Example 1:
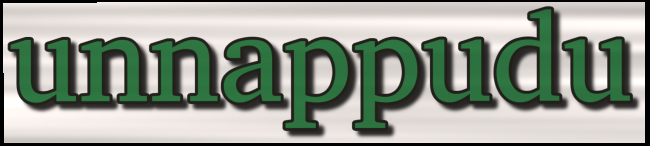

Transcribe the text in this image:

unnappudu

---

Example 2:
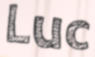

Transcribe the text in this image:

Luc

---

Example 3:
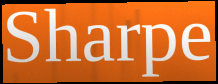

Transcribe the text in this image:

Sharpe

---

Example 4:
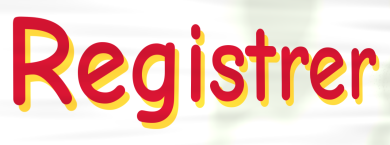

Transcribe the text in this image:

Registrer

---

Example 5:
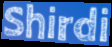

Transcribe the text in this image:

Shirdi